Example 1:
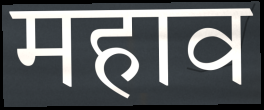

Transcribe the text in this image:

महाव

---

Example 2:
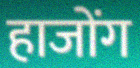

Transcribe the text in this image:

हाजोंग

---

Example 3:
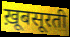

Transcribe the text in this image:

ख़ूबसूरती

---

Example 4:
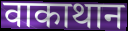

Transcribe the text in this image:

वाकाथान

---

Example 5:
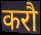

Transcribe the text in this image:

करौ